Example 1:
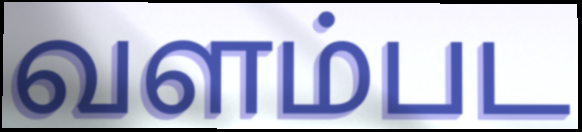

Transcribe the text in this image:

வளம்பட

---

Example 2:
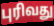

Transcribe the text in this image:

புரிவது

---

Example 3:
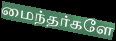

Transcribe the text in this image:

மைந்தர்களே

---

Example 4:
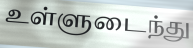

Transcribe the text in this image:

உள்ளுடைந்து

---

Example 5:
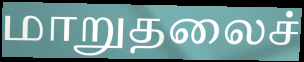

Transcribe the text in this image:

மாறுதலைச்